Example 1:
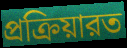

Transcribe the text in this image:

প্রক্রিয়ারত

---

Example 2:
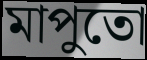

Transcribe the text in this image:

মাপুতো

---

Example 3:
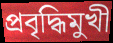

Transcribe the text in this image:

প্রবৃদ্ধিমুখী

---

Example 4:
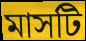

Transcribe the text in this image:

মাসটি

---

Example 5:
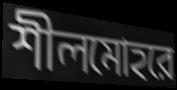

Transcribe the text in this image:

শীলমোহরে